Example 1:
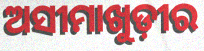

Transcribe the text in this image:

ଅସୀମାଖୁଡ଼ୀର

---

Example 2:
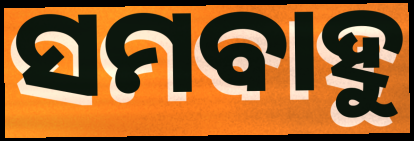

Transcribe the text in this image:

ସମବାହୁ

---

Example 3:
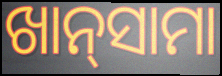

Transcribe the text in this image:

ଖାନ୍‌ସାମା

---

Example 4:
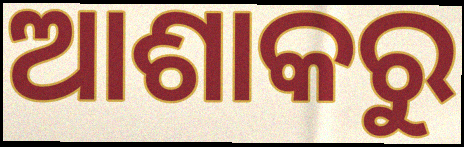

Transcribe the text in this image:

ଆଶାକରୁ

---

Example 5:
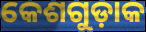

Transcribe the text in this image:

କେଶଗୁଡ଼ାକ